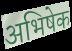
अभिषेक